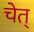
चेत्